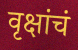
वृक्षांचं